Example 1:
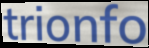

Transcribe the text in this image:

trionfo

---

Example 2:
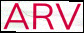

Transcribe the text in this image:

ARV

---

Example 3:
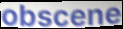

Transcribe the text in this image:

obscene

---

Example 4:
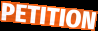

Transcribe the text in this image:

PETITION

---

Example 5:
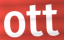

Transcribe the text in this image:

ott